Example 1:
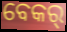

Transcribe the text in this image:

ବେକର୍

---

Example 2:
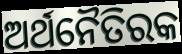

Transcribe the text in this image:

ଅର୍ଥନୈତିରକ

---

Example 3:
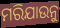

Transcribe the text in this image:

ମରିଯାଉନୁ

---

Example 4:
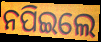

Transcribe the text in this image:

ନପିଇଲେ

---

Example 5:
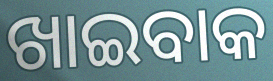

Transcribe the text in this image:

ଖାଇବାକ